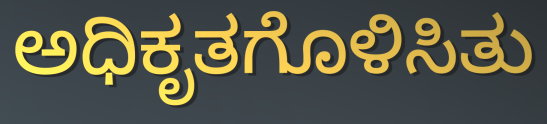
ಅಧಿಕೃತಗೊಳಿಸಿತು